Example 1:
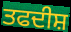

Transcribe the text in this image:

ਤਫਦੀਸ਼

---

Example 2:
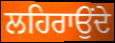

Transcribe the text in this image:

ਲਹਿਰਾਉਂਦੇ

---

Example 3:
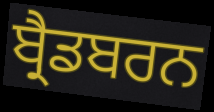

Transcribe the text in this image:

ਬ੍ਰੈਡਬਰਨ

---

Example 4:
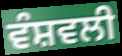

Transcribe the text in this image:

ਵੰਸ਼ਵਲੀ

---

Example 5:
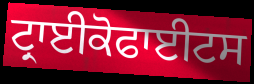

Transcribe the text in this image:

ਟ੍ਰਾਈਕੋਫਾਈਟਸ